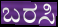
ಬರಸಿ